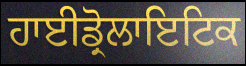
ਹਾਈਡ੍ਰੋਲਾਇਟਿਕ